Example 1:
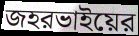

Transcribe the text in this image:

জহরভাইয়ের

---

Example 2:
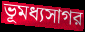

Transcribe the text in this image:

ভূমধ্যসাগর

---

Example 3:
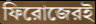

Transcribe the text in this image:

ফিরোজেরই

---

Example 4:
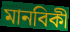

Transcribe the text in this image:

মানবিকী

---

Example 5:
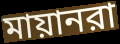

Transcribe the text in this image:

মায়ানরা